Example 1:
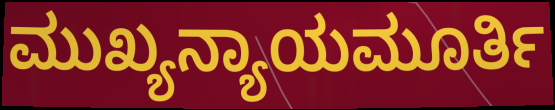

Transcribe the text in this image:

ಮುಖ್ಯನ್ಯಾಯಮೂರ್ತಿ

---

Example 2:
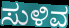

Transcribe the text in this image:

ಸುಳಿವ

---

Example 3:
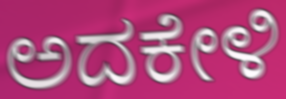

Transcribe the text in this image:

ಅದಕೇಳಿ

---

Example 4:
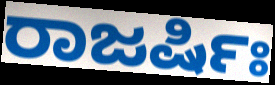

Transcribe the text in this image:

ರಾಜರ್ಷಿಃ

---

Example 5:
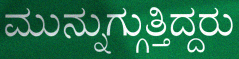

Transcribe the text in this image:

ಮುನ್ನುಗ್ಗುತ್ತಿದ್ದರು